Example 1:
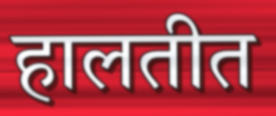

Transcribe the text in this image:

हालतीत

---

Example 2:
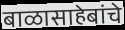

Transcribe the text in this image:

बाळासाहेबांचे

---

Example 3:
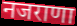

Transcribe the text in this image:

नजराणा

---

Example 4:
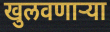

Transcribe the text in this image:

खुलवणाऱ्या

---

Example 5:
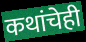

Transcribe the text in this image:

कथांचेही